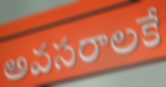
అవసరాలకే